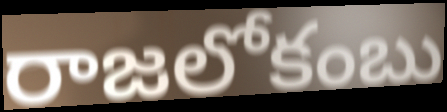
రాజలోకంబు